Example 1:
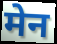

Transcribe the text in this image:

मेन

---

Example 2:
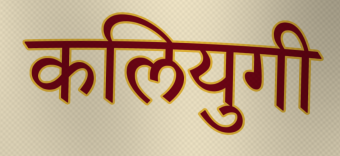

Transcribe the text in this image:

कलियुगी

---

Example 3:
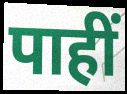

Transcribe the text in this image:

पाहीं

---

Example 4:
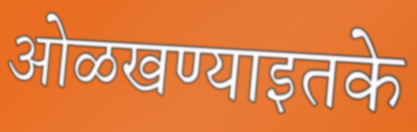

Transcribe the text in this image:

ओळखण्याइतके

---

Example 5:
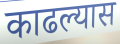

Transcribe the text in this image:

काढल्यास